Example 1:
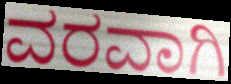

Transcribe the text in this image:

ವರವಾಗಿ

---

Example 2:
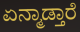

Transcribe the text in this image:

ಏನ್ಮಾಡ್ತಾರೆ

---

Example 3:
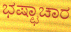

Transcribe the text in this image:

ಭಷ್ಟಾಚಾರ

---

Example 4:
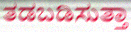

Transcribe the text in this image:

ತಡಬಡಿಸುತ್ತಾ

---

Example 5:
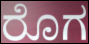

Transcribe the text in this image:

ರೊಗ